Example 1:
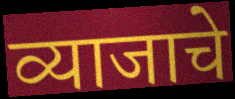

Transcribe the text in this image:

व्याजाचे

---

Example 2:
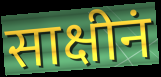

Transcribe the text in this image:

साक्षीनं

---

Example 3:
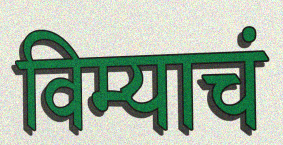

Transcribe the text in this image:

विम्याचं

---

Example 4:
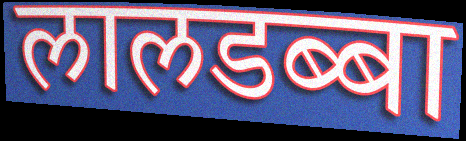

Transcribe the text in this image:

लालडब्बा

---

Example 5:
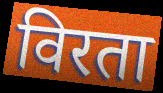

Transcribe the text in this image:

विरता